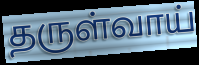
தருள்வாய்